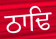
ਠਾਢਿ